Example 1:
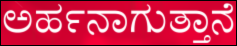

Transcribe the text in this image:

ಅರ್ಹನಾಗುತ್ತಾನೆ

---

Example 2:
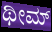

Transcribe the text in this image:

ಥೀಮ್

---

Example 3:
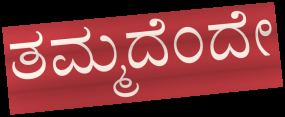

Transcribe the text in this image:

ತಮ್ಮದೆಂದೇ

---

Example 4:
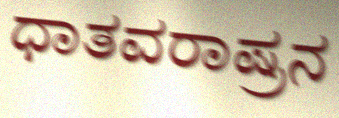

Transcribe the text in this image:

ಧಾತವರಾಷ್ರನ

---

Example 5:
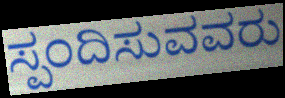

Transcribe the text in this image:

ಸ್ಪಂದಿಸುವವರು